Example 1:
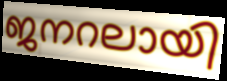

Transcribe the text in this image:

ജനറലായി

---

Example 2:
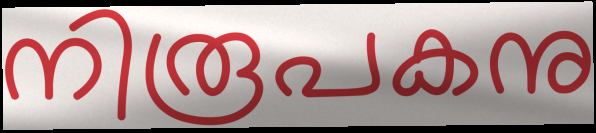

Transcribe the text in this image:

നിരൂപകനു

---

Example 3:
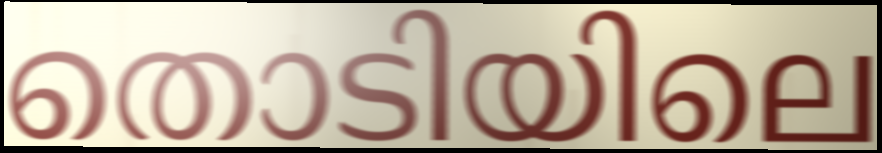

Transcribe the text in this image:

തൊടിയിലെ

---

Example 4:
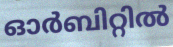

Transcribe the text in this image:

ഓർബിറ്റിൽ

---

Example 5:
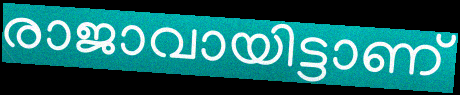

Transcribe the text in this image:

രാജാവായിട്ടാണ്